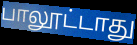
பாலூட்டாது